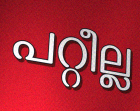
പറ്റീല്ല